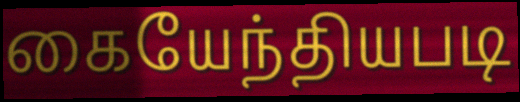
கையேந்தியபடி